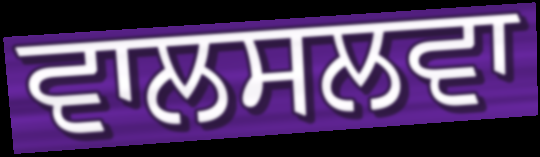
ਵਾਲਸਲਵਾ